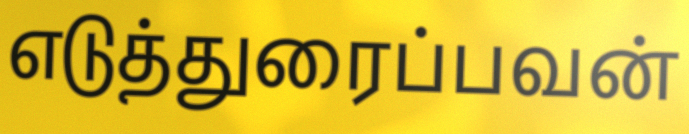
எடுத்துரைப்பவன்